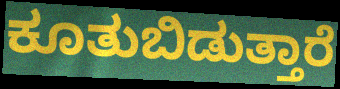
ಕೂತುಬಿಡುತ್ತಾರೆ